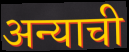
अन्याची